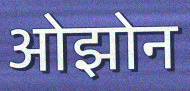
ओझोन